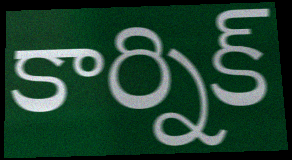
కార్నిక్